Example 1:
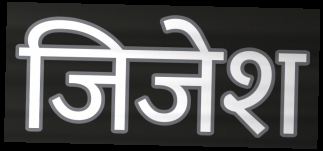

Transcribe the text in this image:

जिजेश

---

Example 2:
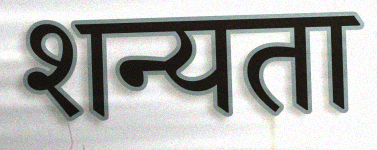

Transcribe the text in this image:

शन्यता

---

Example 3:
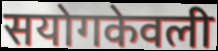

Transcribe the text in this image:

सयोगकेवली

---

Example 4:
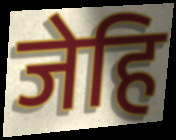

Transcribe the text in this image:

जेहि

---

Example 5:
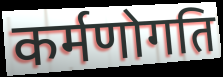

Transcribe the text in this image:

कर्मणोगति